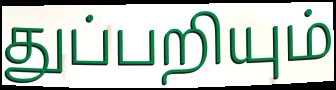
துப்பறியும்